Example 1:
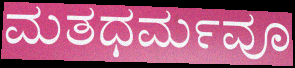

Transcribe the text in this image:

ಮತಧರ್ಮವೂ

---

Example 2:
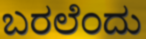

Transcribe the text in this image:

ಬರಲೆಂದು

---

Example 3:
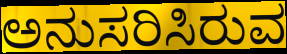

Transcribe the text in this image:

ಅನುಸರಿಸಿರುವ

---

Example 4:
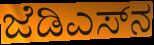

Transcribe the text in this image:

ಜೆಡಿಎಸ್‌ನ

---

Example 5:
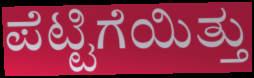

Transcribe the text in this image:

ಪೆಟ್ಟಿಗೆಯಿತ್ತು